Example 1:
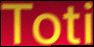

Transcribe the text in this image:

Toti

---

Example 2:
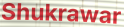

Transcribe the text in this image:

Shukrawar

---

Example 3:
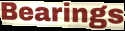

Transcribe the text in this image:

Bearings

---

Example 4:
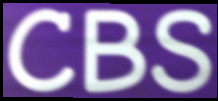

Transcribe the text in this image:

CBS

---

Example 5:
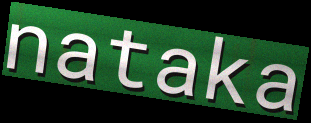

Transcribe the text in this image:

nataka